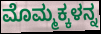
ಮೊಮ್ಮಕ್ಕಳನ್ನ